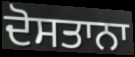
ਦੋਸਤਾਨਾ